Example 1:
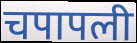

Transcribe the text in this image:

चपापली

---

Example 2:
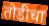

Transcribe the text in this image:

तोडीचा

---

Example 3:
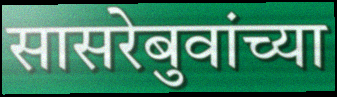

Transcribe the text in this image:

सासरेबुवांच्या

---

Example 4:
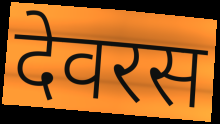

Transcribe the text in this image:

देवरस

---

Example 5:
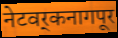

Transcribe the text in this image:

नेटवर्कनागपूर